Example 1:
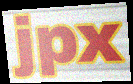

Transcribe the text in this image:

jpx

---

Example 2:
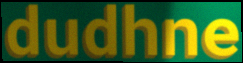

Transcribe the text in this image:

dudhne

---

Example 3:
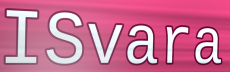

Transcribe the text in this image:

ISvara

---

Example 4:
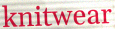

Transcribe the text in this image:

knitwear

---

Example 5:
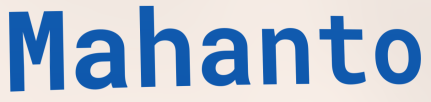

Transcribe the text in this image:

Mahanto